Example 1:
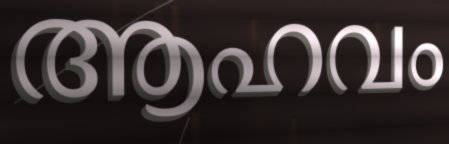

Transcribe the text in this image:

ആഹവം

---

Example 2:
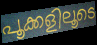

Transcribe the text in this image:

പൂക്കളിലൂടെ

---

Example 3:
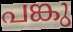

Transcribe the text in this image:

പങ്കു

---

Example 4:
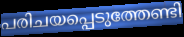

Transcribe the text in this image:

പരിചയപ്പെടുത്തേണ്ടി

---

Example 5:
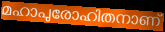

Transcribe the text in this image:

മഹാപുരോഹിതനാണ്